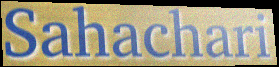
Sahachari